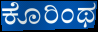
ಕೊರಿಂಥ